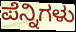
ಪೆನ್ನಿಗಳು